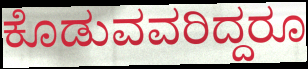
ಕೊಡುವವರಿದ್ದರೂ